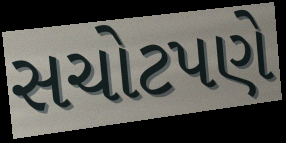
સચોટપણે